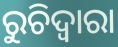
ରୁଚିଦ୍ୱାରା